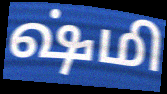
ஷ்மி